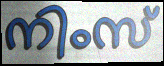
നിംസ്